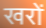
खरों